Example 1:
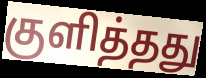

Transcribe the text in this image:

குளித்தது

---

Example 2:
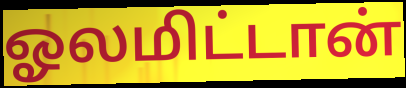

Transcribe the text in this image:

ஓலமிட்டான்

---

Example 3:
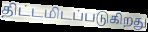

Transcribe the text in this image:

திட்டமிடப்படுகிறது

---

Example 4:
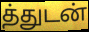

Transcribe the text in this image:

த்துடன்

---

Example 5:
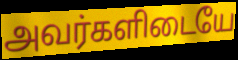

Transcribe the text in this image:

அவர்களிடையே